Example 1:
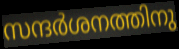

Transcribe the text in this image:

സന്ദർശനത്തിനു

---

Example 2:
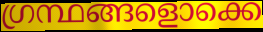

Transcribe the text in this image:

ഗ്രന്ഥങ്ങളൊക്കെ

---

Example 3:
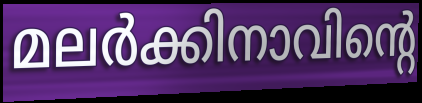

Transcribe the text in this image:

മലർക്കിനാവിന്റെ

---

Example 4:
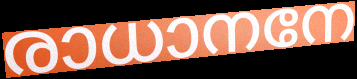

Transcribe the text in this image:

രാധാനനേ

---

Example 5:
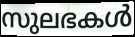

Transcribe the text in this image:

സുലഭകൾ